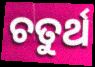
ଚତୁର୍ଥ